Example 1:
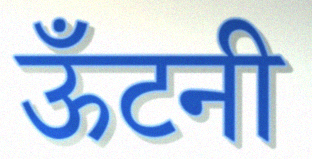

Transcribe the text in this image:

ऊँटनी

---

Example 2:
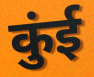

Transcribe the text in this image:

कुंई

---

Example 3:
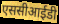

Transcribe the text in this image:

एससीआईडी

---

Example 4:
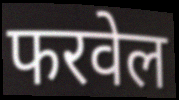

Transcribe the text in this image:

फरवेल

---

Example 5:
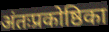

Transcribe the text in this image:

अंतःप्रकोष्ठिका